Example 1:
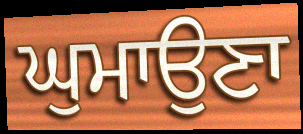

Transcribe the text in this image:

ਘੁਮਾਉਣਾ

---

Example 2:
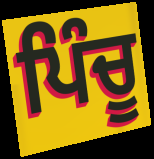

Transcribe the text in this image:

ਪਿੰਚੂ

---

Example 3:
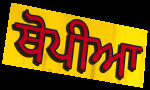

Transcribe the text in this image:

ਥੋਪੀਆ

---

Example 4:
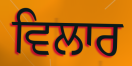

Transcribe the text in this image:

ਵਿਲਾਰ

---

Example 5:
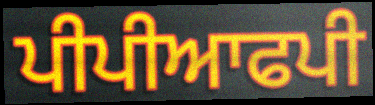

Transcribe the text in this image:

ਪੀਪੀਆਫਪੀ